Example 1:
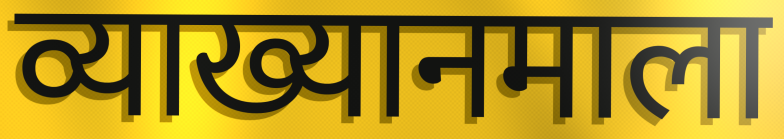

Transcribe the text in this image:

व्याख्यानमाला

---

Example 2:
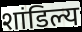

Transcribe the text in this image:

शांडिल्य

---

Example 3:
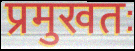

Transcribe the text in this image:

प्रमुखतः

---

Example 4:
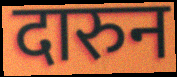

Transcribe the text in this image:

दारुन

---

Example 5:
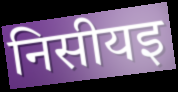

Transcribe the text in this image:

निसीयइ